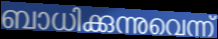
ബാധിക്കുന്നുവെന്ന്